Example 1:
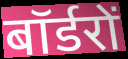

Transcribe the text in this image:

बॉर्डरों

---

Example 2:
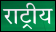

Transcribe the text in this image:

राट्रीय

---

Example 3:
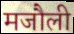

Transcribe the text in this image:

मजौली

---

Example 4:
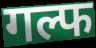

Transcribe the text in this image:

गल्फ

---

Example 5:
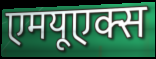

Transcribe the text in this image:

एमयूएक्स